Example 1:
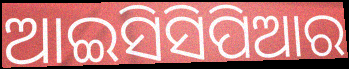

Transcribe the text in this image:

ଆଇସିସିପିଆର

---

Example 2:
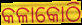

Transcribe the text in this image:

କଳାକୋଠି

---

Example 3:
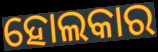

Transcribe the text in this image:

ହୋଲକାର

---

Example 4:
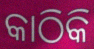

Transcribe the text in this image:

କାଠିକି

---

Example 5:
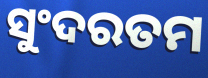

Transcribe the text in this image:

ସୁଂଦରତମ